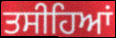
ਤਸੀਹਿਆਂ